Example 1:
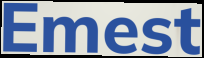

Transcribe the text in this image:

Emest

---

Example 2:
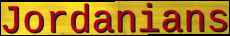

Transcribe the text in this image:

Jordanians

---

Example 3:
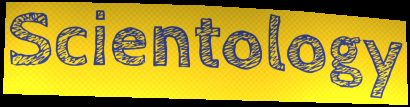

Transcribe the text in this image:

Scientology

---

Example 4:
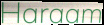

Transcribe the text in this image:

Haraam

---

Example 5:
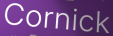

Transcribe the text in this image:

Cornick